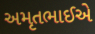
અમૃતભાઈએ